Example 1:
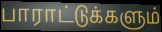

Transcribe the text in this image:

பாராட்டுக்களும்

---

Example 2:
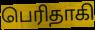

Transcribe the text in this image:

பெரிதாகி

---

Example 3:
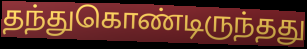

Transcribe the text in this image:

தந்துகொண்டிருந்தது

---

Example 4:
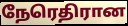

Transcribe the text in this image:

நேரெதிரான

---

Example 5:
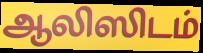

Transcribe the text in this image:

ஆலிஸிடம்